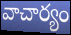
వాచార్యం